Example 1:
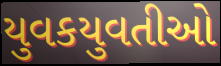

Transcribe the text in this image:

યુવકયુવતીઓ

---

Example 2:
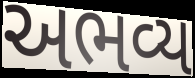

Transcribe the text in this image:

અભવ્ય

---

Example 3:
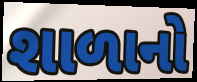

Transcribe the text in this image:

શાળાનો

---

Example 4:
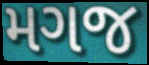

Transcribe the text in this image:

મગજ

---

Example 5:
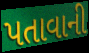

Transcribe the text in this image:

પતાવાની